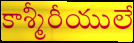
కాశ్మీరీయులే